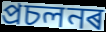
প্ৰচলনৰ